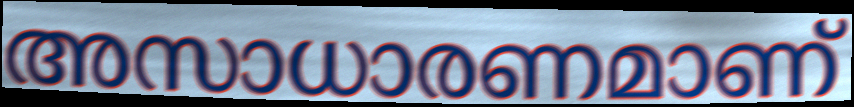
അസാധാരണമാണ്